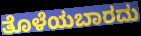
ತೊಳೆಯಬಾರದು